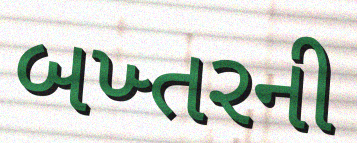
બખ્તરની